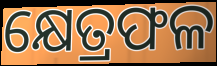
କ୍ଷେତ୍ରଫଳ